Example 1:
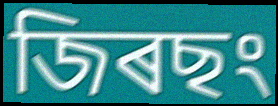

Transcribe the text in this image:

জিৰছং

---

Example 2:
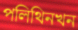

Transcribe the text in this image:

পলিথিনখন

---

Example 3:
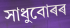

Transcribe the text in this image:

সাধুবোৰৰ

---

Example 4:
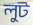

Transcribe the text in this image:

লুট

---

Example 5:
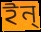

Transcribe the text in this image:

ইন্